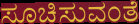
ಸೂಚಿಸುವಂತೆ